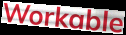
Workable